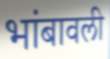
भांबावली